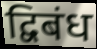
द्विबंध